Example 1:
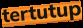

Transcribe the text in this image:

tertutup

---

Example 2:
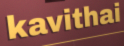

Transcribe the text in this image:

kavithai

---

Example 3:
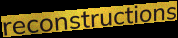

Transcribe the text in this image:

reconstructions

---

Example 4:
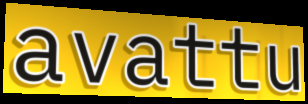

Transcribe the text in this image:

avattu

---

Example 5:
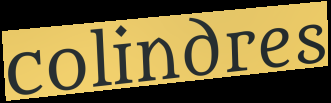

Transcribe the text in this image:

colindres